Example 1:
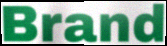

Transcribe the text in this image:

Brand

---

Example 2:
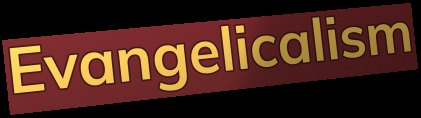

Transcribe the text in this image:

Evangelicalism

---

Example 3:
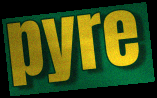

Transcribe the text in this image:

pyre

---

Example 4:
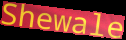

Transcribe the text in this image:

Shewale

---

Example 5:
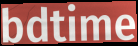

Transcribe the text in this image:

bdtime